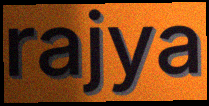
rajya